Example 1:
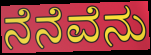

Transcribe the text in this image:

ನೆನೆವೆನು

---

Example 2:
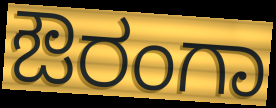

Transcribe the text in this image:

ಔರಂಗಾ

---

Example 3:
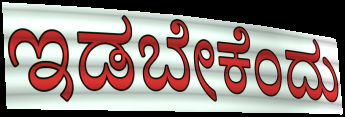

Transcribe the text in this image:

ಇಡಬೇಕೆಂದು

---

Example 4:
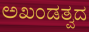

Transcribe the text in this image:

ಅಖಂಡತ್ವದ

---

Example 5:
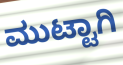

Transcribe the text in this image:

ಮುಟ್ಟಾಗಿ